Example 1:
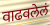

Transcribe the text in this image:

वाढवलेलं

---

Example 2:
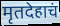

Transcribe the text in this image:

मृतदेहाचं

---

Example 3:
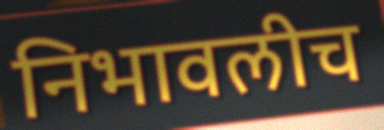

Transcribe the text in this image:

निभावलीच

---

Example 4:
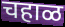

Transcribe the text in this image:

चहाळ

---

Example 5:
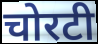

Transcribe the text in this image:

चोरटी